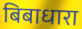
बिबाधारा